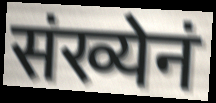
संख्येनं